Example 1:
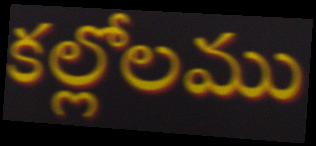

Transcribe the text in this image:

కల్లోలము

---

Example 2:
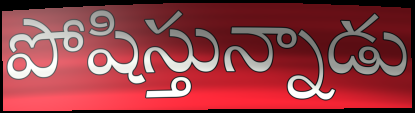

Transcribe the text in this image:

పోషిస్తున్నాడు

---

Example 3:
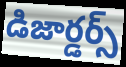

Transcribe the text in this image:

డిజార్డర్స్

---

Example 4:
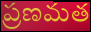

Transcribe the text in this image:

ప్రణమత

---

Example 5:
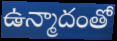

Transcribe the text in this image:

ఉన్మాదంతో